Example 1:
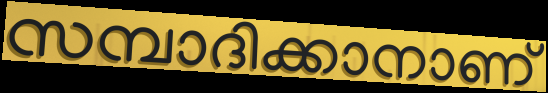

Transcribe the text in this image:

സമ്പാദിക്കാനാണ്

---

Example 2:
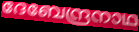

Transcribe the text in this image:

ദേബേന്ദ്രനാഥ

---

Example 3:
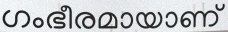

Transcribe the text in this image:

ഗംഭീരമായാണ്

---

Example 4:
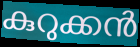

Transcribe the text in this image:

കുറുക്കൻ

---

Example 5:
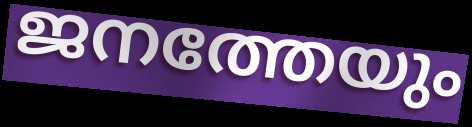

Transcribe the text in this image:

ജനത്തേയും